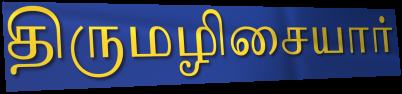
திருமழிசையார்